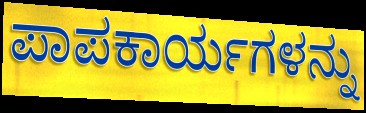
ಪಾಪಕಾರ್ಯಗಳನ್ನು